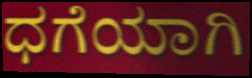
ಧಗೆಯಾಗಿ